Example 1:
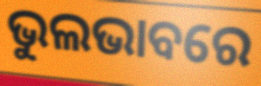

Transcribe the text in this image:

ଭୁଲଭାବରେ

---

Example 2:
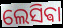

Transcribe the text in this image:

ଲେସିଵା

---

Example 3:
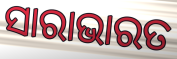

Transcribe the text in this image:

ସାରାଭାରତ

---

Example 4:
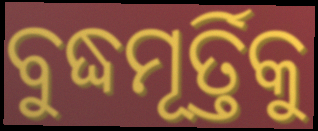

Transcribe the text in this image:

ବୁଦ୍ଧମୂର୍ତ୍ତିକୁ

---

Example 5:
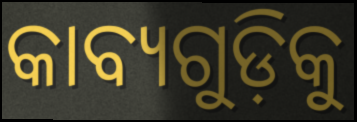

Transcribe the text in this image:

କାବ୍ୟଗୁଡ଼ିକୁ